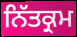
ਨਿੱਤਕ੍ਰਮ